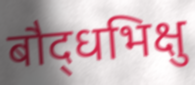
बौद्धभिक्षु